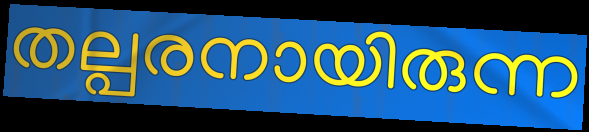
തല്പരനായിരുന്ന